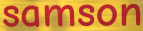
samson